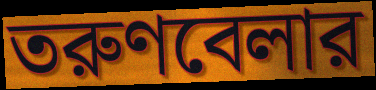
তরুণবেলার